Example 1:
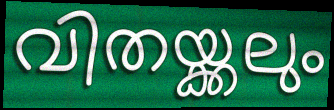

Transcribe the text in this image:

വിതയ്ക്കലും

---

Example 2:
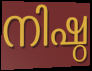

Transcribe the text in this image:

നിഷ്ഠ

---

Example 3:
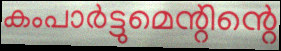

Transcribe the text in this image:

കംപാർട്ടുമെന്റിന്റെ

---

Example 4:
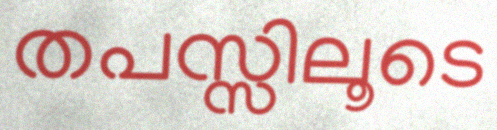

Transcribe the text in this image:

തപസ്സിലൂടെ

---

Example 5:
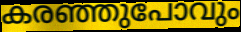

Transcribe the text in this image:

കരഞ്ഞുപോവും